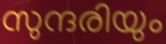
സുന്ദരിയും